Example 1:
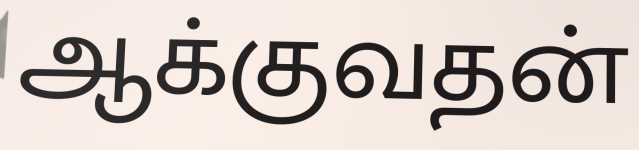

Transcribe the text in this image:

ஆக்குவதன்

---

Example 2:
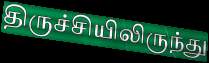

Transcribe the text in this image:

திருச்சியிலிருந்து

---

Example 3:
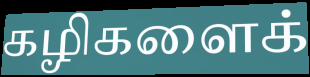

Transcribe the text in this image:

கழிகளைக்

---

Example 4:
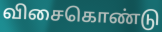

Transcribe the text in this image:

விசைகொண்டு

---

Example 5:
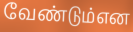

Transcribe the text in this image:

வேண்டும்என